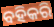
ବହିକରି